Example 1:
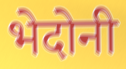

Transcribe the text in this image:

भेदोनी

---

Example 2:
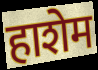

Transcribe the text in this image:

हाशेम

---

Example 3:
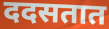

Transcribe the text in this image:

ददसतात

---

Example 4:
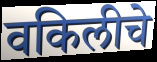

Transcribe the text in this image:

वकिलीचे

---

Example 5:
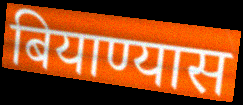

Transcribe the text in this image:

बियाण्यास